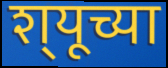
श्यूच्या